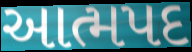
આત્મપદ